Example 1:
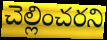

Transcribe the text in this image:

చెల్లించరని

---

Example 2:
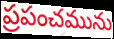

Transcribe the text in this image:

ప్రపంచమును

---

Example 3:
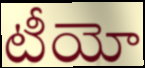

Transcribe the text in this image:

టీయో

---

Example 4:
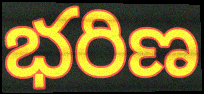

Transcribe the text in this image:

భరిణ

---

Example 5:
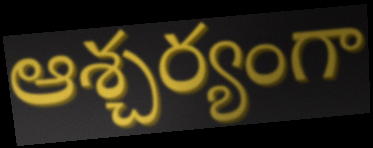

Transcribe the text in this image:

ఆశ్చర్యంగా